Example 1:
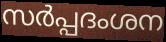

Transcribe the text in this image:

സർപ്പദംശന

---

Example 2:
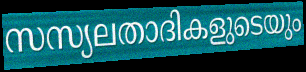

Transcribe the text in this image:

സസ്യലതാദികളുടെയും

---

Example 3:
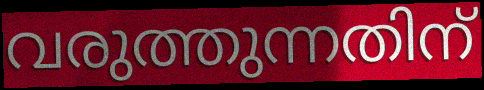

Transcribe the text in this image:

വരുത്തുന്നതിന്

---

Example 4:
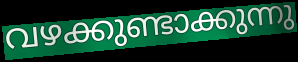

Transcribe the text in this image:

വഴക്കുണ്ടാക്കുന്നു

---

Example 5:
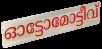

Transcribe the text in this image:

ഓട്ടോമോട്ടീവ്